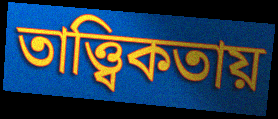
তাত্ত্বিকতায়